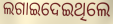
ଲଗାଇଦେଇଥିଲେ